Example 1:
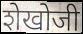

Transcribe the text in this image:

शेखोजी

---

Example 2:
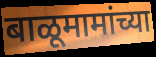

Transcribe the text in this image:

बाळूमामांच्या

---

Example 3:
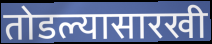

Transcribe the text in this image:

तोडल्यासारखी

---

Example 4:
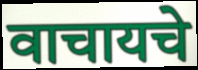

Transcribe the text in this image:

वाचायचे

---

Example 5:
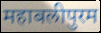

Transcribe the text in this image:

महाबलीपुरम